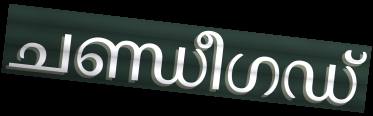
ചണ്ഡീഗഡ്